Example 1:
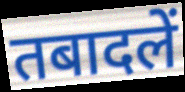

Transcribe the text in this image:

तबादलें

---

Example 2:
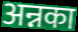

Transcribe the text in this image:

अन्नका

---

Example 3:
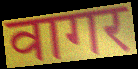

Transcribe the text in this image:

वागर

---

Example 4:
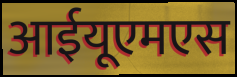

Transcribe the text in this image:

आईयूएमएस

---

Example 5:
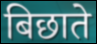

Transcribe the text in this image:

बिछाते